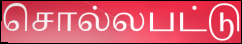
சொல்லபட்டு